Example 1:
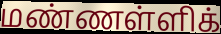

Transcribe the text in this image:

மண்ணள்ளிக்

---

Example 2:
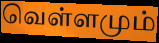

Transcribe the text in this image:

வெள்ளமும்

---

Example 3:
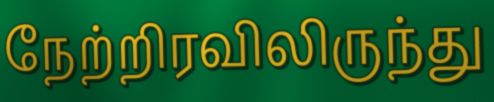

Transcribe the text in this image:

நேற்றிரவிலிருந்து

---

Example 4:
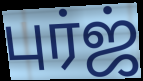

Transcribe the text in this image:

புர்ஜ்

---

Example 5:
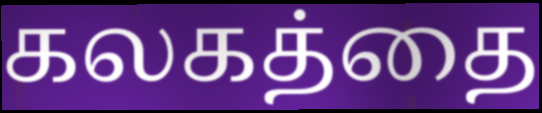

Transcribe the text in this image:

கலகத்தை